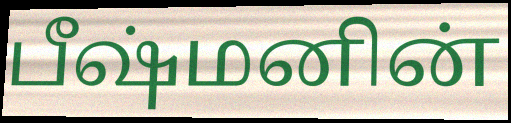
பீஷ்மனின்